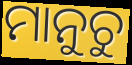
ମାନୁଚୁ